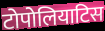
टोपोलियाटिस